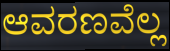
ಆವರಣವೆಲ್ಲ